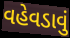
વહેવડાવું